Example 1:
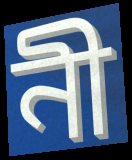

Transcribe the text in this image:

নী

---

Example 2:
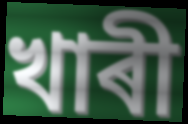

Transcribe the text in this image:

খাৰী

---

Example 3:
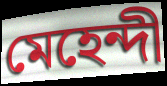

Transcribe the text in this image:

মেহেন্দী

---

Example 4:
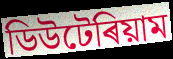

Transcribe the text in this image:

ডিউটেৰিয়াম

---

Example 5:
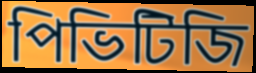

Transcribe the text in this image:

পিভিটিজি